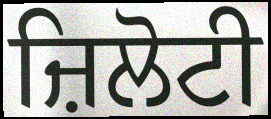
ਜ਼ਿਲੋਟੀ